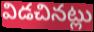
విడచినట్లు